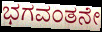
ಭಗವಂತನೇ